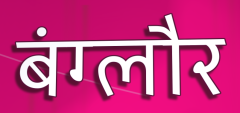
बंग्लौर